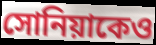
সোনিয়াকেও